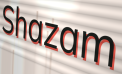
Shazam